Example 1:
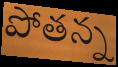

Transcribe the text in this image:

పోతన్న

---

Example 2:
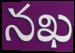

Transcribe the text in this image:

నఖ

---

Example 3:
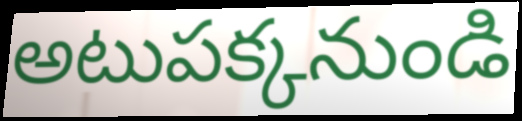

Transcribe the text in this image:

అటుపక్కనుండి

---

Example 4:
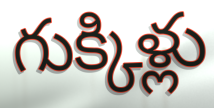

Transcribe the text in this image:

గుక్కిళ్లు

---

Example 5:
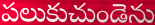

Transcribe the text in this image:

పలుకుచుండెను